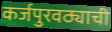
कर्जपुरवठ्याची